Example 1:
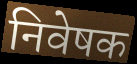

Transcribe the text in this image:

निवेषक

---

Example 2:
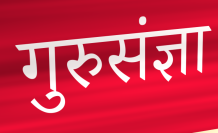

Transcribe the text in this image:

गुरुसंज्ञा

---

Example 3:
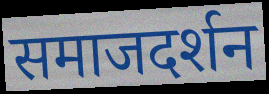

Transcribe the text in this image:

समाजदर्शन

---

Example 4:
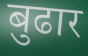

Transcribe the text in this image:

बुढार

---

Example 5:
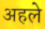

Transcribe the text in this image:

अहले